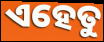
ଏହେତୁ